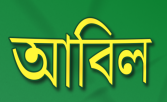
আবিল